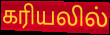
கரியலில்